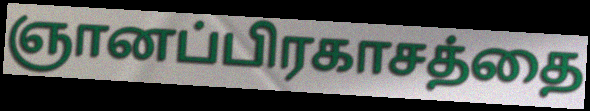
ஞானப்பிரகாசத்தை